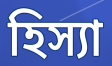
হিস্যা